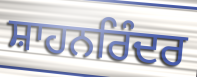
ਸ਼ਾਹਨਰਿੰਦਰ